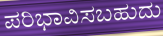
ಪರಿಭಾವಿಸಬಹುದು